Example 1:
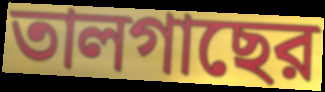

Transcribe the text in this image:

তালগাছের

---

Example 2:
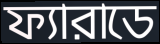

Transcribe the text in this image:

ফ্যারাডে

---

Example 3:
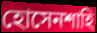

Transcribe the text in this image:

হোসেনশাহি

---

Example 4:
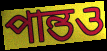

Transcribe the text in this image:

পান্তও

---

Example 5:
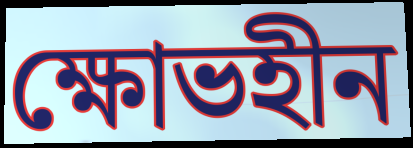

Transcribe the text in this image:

ক্ষোভহীন